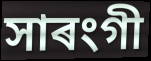
সাৰংগী